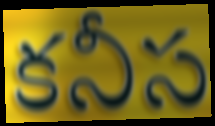
కనీస